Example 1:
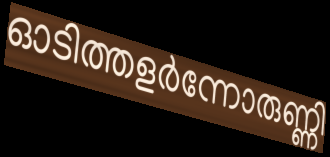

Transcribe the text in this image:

ഓടിത്തളർന്നോരുണ്ണി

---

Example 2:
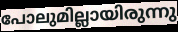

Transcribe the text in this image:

പോലുമില്ലായിരുന്നു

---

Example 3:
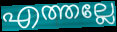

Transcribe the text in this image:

എത്തല്ലേ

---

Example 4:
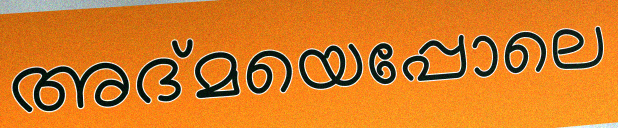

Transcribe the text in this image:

അദ്മയെപ്പോലെ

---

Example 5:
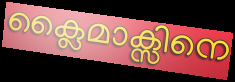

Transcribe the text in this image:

ക്ലൈമാക്സിനെ